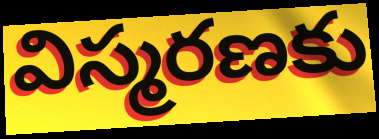
విస్మరణకు